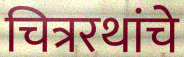
चित्ररथांचे